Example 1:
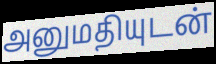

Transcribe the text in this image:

அனுமதியுடன்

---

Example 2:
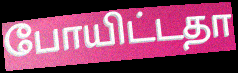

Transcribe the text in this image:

போயிட்டதா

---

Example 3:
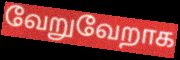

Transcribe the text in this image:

வேறுவேறாக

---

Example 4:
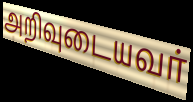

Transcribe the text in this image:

அறிவுடையவர்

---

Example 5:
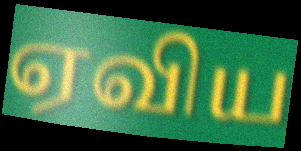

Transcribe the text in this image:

ஏவிய